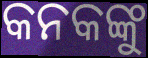
କନକଙ୍କୁ